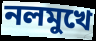
নলমুখে